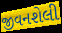
જીવનશેલી